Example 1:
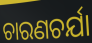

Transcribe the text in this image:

ଚାରଣଚର୍ଯା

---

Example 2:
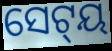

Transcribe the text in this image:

ସେଟ୍‌ୟ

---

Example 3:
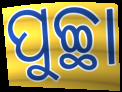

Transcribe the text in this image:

ପୁଚ୍ଛା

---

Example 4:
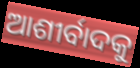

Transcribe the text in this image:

ଆଶୀର୍ବାଦକୁ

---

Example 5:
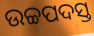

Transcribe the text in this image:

ଉଚ୍ଚପଦସ୍ତ